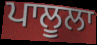
ਪਾਲੂਲਾ